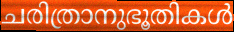
ചരിത്രാനുഭൂതികൾ